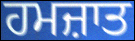
ਹਮਜ਼ਾਤ